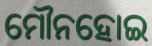
ମୌନହୋଇ